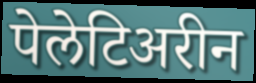
पेलेटिअरीन